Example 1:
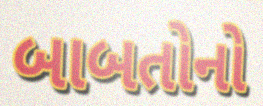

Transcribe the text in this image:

બાબતોનો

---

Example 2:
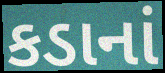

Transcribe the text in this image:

કડાનાં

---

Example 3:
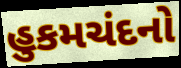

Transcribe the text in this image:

હુકમચંદનો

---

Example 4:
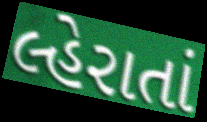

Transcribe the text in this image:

લ્હેરાતાં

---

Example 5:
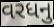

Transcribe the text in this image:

વરધનુ